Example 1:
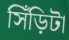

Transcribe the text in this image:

সিঁড়িটা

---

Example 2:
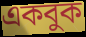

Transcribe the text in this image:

একবুক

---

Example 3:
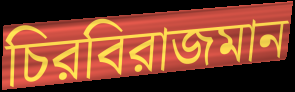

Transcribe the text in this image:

চিরবিরাজমান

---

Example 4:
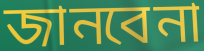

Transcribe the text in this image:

জানবেনা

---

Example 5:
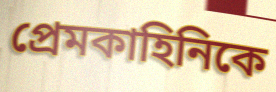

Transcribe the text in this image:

প্রেমকাহিনিকে